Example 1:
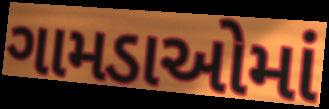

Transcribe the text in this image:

ગામડાઓમાં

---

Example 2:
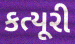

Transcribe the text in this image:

કત્યૂરી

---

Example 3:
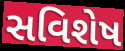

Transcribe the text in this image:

સવિશેષ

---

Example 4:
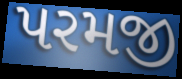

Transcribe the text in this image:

પરમજી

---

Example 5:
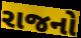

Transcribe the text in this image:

રાજનો